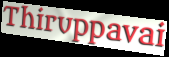
Thiruppavai